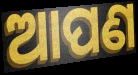
ଆପଣ